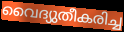
വൈദ്യുതീകരിച്ച